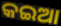
କଇଆ